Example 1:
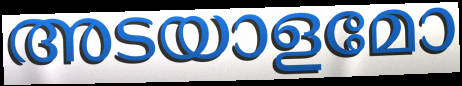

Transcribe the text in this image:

അടയാളമോ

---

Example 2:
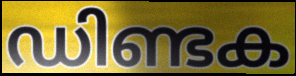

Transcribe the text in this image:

ഡിണ്ടക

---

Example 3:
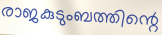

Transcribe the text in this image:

രാജകുടുംബത്തിന്റെ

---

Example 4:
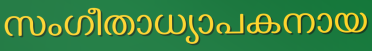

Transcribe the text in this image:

സംഗീതാധ്യാപകനായ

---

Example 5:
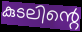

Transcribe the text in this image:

കുടലിന്റെ